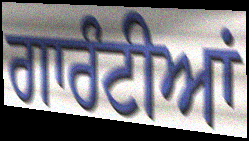
ਗਾਰੰਟੀਆਂ